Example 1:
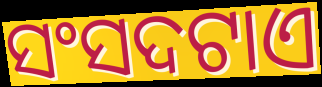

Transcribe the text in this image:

ସଂସଦଟାଏ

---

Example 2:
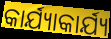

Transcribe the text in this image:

କାର୍ଯ୍ୟାକାର୍ଯ୍ୟ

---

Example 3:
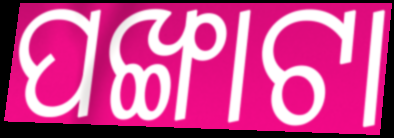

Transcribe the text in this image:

ପଙ୍ଖାଟା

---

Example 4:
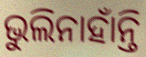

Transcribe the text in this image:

ଭୁଲିନାହାଁନ୍ତି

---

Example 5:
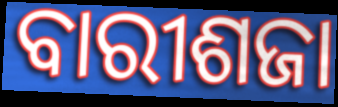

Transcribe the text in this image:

ବାରୀଶଜା